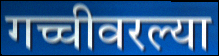
गच्चीवरल्या